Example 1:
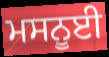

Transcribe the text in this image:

ਮਸਨੂਈ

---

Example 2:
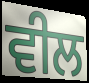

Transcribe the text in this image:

ਵੀਲ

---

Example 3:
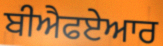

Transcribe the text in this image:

ਬੀਐਫਏਆਰ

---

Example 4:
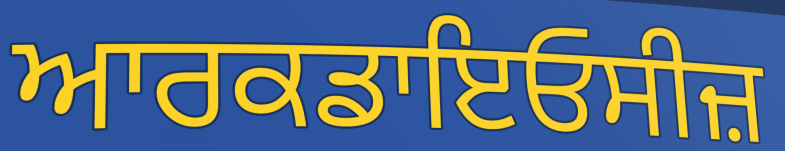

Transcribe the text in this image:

ਆਰਕਡਾਇਓਸੀਜ਼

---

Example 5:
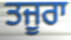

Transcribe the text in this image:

ਤਜੂਰਾ